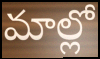
మాల్లో